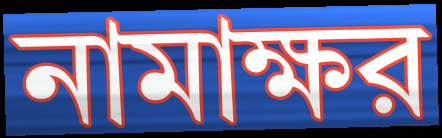
নামাক্ষর